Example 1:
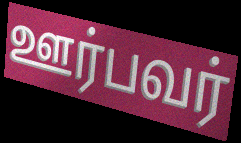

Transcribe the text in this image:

ஊர்பவர்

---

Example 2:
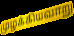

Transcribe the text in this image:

முழக்கியவாறு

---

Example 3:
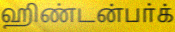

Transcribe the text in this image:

ஹிண்டன்பர்க்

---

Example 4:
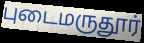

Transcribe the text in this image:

புடைமருதூர்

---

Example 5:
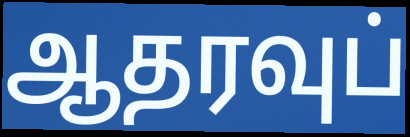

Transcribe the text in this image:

ஆதரவுப்